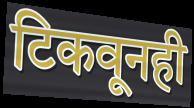
टिकवूनही